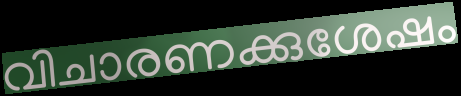
വിചാരണക്കുശേഷം